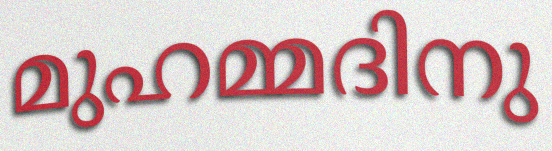
മുഹമ്മദിനു